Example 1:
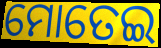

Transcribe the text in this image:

ମୋତେଇ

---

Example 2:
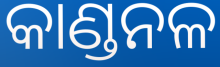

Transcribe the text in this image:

କାଣ୍ଡନଳ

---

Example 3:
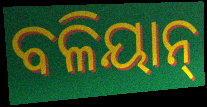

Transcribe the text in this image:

ବଳିୟାନ୍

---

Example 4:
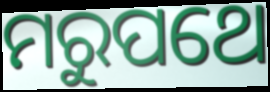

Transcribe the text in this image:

ମରୁପଥେ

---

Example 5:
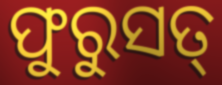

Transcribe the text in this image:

ଫୁରୁସତ୍